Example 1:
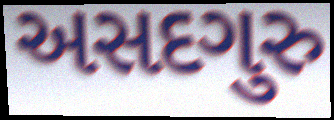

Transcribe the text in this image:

અસદગુરુ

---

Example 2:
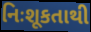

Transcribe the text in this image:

નિઃશૂકતાથી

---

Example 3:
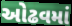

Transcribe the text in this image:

ઓઢવમાં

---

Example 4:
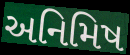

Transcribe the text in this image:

અનિમિષ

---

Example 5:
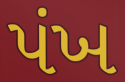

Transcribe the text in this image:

પંખ